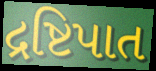
દ્રષ્ટિપાત